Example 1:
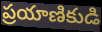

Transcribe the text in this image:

ప్రయాణికుడి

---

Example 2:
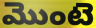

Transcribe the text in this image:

మొంటె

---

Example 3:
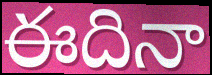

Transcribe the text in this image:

ఈదినా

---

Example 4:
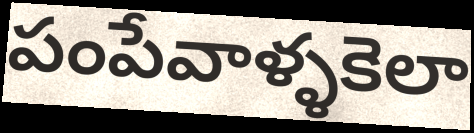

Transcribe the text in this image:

పంపేవాళ్ళకెలా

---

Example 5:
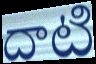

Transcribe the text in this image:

దాటి